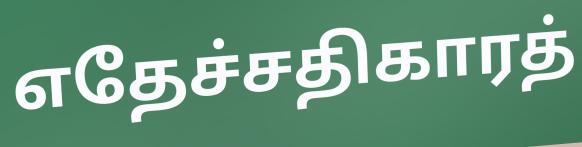
எதேச்சதிகாரத்